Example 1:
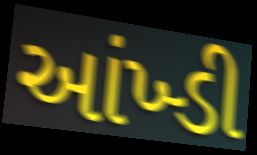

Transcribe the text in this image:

આંખ્ડી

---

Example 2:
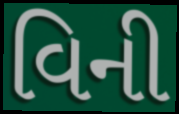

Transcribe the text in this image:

વિની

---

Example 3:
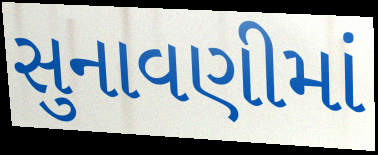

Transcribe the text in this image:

સુનાવણીમાં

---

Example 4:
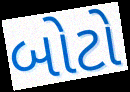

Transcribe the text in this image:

બોટો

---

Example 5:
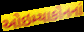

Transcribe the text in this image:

ઓઇમ્યાકોનનાં